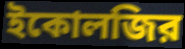
ইকোলজির